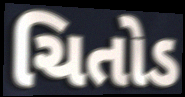
ચિતોડ